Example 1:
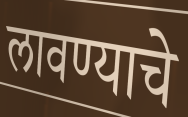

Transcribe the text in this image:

लावण्याचे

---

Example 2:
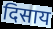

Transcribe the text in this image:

दिसाय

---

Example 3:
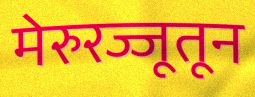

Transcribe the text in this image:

मेरुरज्जूतून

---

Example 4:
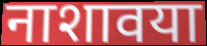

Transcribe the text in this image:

नाशावया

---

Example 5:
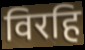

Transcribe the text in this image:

विरहि